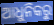
ଆଧୁନିକରୁ